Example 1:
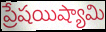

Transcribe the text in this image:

ప్రేషయిష్యామి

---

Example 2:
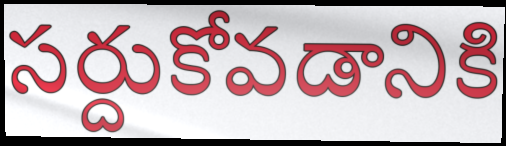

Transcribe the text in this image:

సర్దుకోవడానికి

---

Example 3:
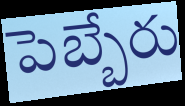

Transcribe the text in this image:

పెబ్బేరు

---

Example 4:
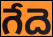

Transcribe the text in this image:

గేదె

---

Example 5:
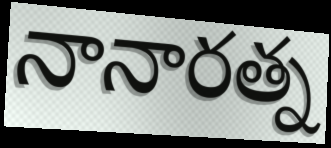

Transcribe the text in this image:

నానారత్న